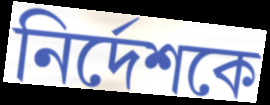
নির্দেশকে